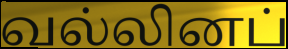
வல்லினப்